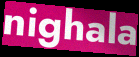
nighala